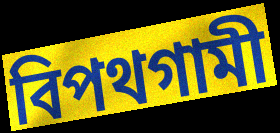
বিপথগামী